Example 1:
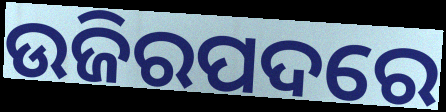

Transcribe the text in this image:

ଉଜିରପଦରେ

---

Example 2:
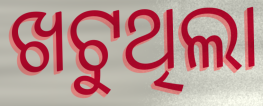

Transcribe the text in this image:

ଖଟୁଥିଲା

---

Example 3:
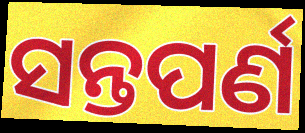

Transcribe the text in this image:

ସନ୍ତପର୍ଣ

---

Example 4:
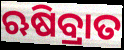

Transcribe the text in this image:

ଋଷିବ୍ରାତ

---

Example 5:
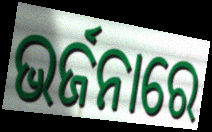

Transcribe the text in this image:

ଭର୍ଜନାରେ